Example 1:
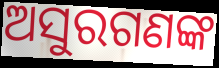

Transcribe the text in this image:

ଅସୁରଗଣଙ୍କ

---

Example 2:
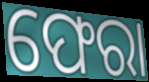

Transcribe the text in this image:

ଫେରା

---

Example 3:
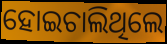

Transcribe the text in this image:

ହୋଇଚାଲିଥିଲେ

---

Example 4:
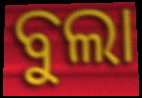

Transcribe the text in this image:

ବୁଲା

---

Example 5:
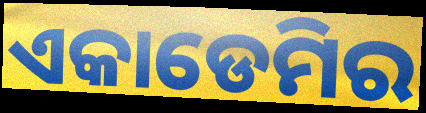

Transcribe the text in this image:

ଏକାଡେମିର